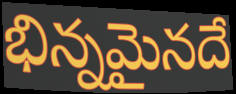
భిన్నమైనదే